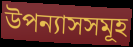
উপন্যাসসমূহ